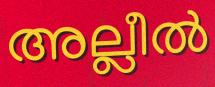
അല്ലീൽ